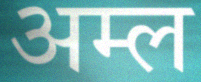
अम्ल